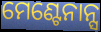
ମେଣ୍ଟେନାନ୍ସ